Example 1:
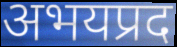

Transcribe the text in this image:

अभयप्रद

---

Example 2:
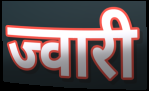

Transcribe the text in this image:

ज्वारी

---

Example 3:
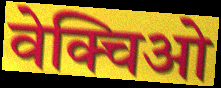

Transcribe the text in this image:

वेक्चिओ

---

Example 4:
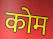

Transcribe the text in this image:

कोम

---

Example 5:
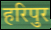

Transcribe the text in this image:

हरिपुर